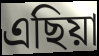
এছিয়া